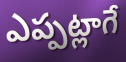
ఎప్పట్లాగే